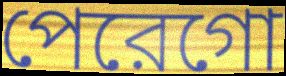
পেরেগো